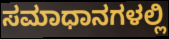
ಸಮಾಧಾನಗಳಲ್ಲಿ